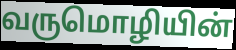
வருமொழியின்